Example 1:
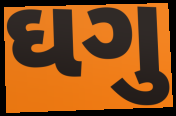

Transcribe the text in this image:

ઘગુ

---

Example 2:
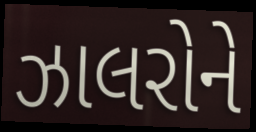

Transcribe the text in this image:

ઝાલરોને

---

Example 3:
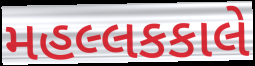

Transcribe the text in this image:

મહલ્લકકાલે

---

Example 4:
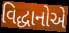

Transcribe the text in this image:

વિદ્ધાનોએ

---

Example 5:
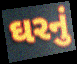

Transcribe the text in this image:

ઘરનું